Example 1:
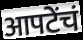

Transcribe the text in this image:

आपटेंचं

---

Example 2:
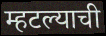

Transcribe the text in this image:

म्हटल्याची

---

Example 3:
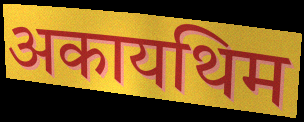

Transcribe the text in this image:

अकायथिम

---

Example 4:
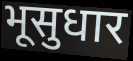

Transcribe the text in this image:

भूसुधार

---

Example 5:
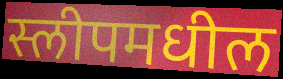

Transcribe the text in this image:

स्लीपमधील